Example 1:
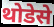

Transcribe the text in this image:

थोडेसे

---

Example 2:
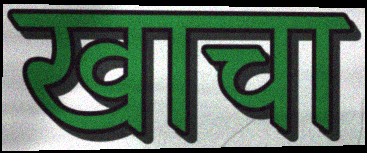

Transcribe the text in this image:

खाचा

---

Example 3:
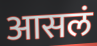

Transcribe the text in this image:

आसलं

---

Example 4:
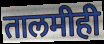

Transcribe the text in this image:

तालमीही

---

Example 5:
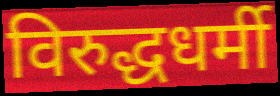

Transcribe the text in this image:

विरुद्धधर्मी